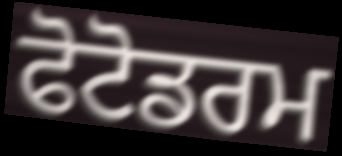
ਫੋਟੋਡਰਮ